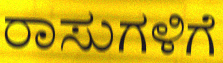
ರಾಸುಗಳಿಗೆ